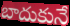
బాదుకునే